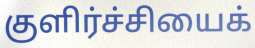
குளிர்ச்சியைக்